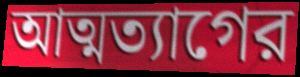
আত্মত্যাগের